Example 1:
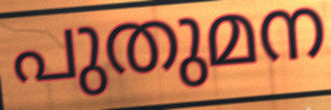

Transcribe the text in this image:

പുതുമന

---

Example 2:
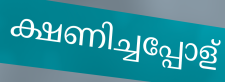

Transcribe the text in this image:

ക്ഷണിച്ചപ്പോള്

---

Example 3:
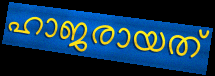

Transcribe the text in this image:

ഹാജരായത്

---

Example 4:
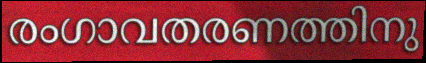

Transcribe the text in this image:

രംഗാവതരണത്തിനു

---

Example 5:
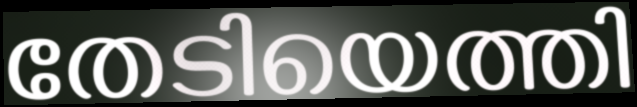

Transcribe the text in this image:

തേടിയെത്തി